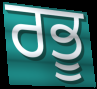
ਰਭੂ